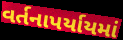
વર્તનાપર્યાયમાં